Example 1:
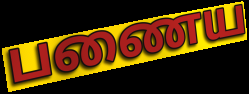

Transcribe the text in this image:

பணைய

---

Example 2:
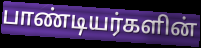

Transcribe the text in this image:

பாண்டியர்களின்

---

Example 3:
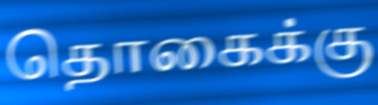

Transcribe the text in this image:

தொகைக்கு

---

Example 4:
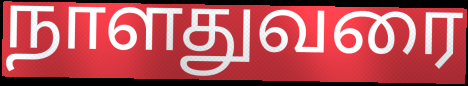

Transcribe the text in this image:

நாளதுவரை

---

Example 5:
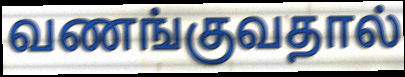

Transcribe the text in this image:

வணங்குவதால்